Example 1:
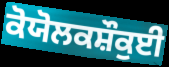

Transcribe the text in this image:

ਕੋਯੋਲਕਸ਼ੌਕੁਈ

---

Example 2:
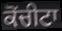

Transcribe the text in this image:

ਕੋਂਚੀਟਾ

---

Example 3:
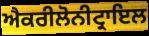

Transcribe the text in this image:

ਐਕਰੀਲੋਨੀਟ੍ਰਾਇਲ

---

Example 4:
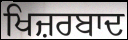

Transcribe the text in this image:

ਖਿਜ਼ਰਬਾਦ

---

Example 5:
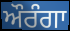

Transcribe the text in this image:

ਔਰੰਗਾ